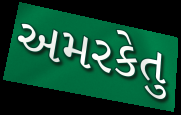
અમરકેતુ